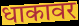
धाकावर